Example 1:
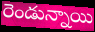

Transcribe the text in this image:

రెండున్నాయి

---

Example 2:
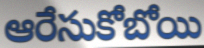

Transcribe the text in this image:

ఆరేసుకోబోయి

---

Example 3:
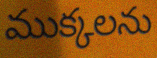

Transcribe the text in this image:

ముక్కలను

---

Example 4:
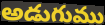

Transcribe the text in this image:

అడుగుము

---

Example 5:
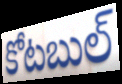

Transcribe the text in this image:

కోటబుల్